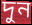
দুন